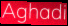
Aghadi